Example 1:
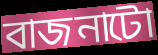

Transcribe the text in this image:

বাজনাটো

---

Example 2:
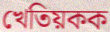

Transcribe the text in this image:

খেতিয়কক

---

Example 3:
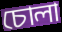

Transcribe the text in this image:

চোলা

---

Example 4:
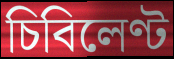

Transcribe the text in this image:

চিবিলেণ্ট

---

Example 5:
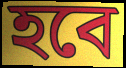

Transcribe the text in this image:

হবে